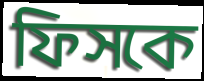
ফিসকে